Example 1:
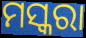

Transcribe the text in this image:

ମସ୍କରା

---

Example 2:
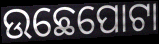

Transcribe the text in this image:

ଉଛେପୋଟା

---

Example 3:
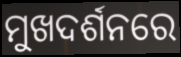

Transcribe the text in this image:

ମୁଖଦର୍ଶନରେ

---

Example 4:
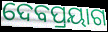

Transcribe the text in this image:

ଦେବପ୍ରୟାଗ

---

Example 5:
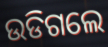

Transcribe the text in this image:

ଉଡିଗଲେ